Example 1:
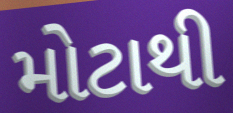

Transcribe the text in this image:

મોટાથી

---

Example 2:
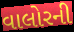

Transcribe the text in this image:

વાલોરની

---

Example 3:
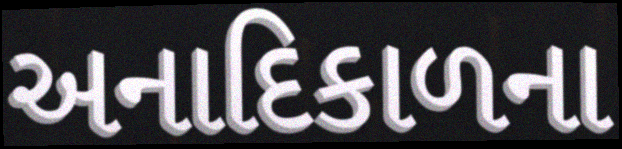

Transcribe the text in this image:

અનાદિકાળના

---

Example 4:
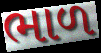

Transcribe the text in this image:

ભાળ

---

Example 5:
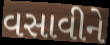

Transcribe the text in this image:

વસાવીને